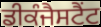
ਡੀਕੰਜੈਸਟੈਂਟ